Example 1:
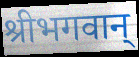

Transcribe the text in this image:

श्रीभगवान्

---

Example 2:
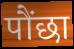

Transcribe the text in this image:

पौंछा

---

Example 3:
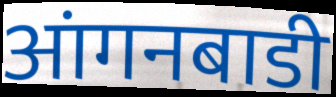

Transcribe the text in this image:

आंगनबाडी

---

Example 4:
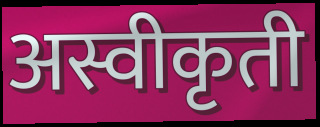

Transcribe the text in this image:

अस्वीकृती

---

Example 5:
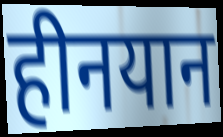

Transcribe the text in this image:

हीनयान